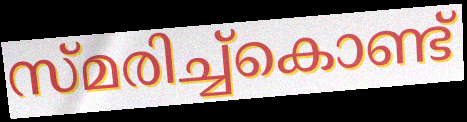
സ്മരിച്ച്കൊണ്ട്